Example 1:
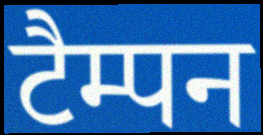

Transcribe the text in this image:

टैम्पन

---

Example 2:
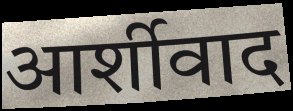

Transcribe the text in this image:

आर्शीवाद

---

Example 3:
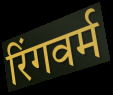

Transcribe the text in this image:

रिंगवर्म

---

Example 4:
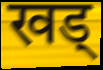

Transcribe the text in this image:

खड्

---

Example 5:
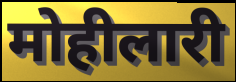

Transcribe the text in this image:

मोहीलारी